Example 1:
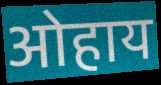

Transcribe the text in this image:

ओहाय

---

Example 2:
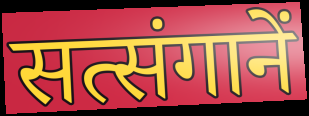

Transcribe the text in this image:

सत्संगानें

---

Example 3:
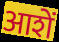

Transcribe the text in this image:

आशें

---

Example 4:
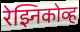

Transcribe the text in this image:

रेझ्निकोव्ह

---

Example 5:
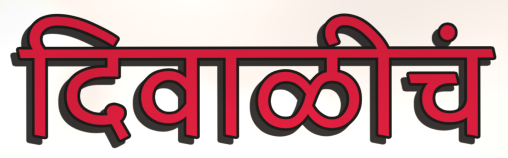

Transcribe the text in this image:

दिवाळीचं